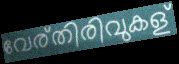
വേര്തിരിവുകള്